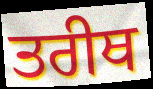
ਤਰੀਥ